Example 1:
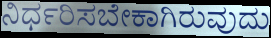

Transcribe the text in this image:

ನಿರ್ಧರಿಸಬೇಕಾಗಿರುವುದು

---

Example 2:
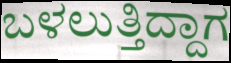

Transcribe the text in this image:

ಬಳಲುತ್ತಿದ್ದಾಗ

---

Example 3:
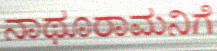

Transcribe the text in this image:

ನಾಥೂರಾಮನಿಗೆ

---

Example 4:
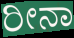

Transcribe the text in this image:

ರೀನಾ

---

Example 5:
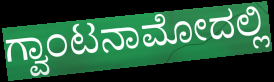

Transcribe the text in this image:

ಗ್ವಾಂಟನಾಮೋದಲ್ಲಿ